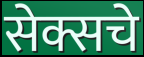
सेक्सचे